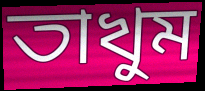
তাখুম